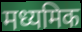
मध्यमिक